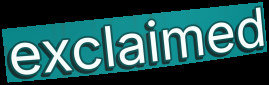
exclaimed